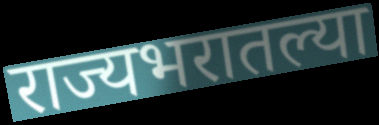
राज्यभरातल्या